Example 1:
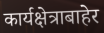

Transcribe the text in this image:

कार्यक्षेत्राबाहेर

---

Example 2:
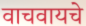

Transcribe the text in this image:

वाचवायचे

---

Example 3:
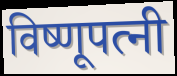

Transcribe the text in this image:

विष्णूपत्नी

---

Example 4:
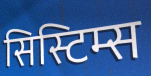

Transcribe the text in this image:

सिस्टिम्स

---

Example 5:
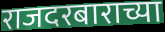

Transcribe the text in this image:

राजदरबाराच्या